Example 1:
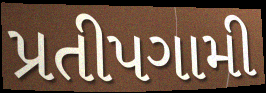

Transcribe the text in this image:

પ્રતીપગામી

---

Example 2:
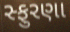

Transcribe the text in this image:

સ્ફુરણા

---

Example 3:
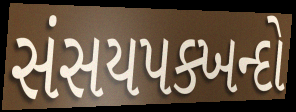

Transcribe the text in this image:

સંસયપક્ખન્દો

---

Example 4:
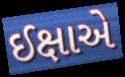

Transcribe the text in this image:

ઈક્ષાએ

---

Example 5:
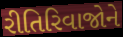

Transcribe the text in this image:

રીતિરિવાજોને